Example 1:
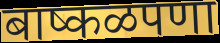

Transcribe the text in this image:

बाष्कळपणा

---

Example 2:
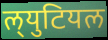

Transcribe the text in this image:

ल्युटियल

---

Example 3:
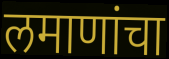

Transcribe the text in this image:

लमाणांचा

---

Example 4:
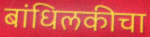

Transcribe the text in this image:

बांधिलकीचा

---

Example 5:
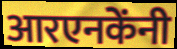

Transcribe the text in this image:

आरएनकेंनी